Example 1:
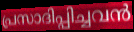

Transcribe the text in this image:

പ്രസാദിപ്പിച്ചവൻ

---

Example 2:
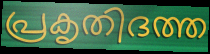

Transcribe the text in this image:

പ്രകൃതിദത്ത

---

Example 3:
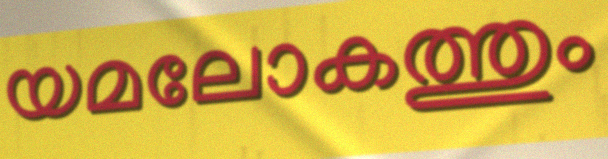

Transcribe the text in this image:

യമലോകത്തും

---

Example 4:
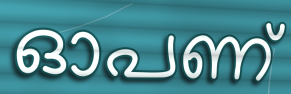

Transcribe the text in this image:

ഓപണ്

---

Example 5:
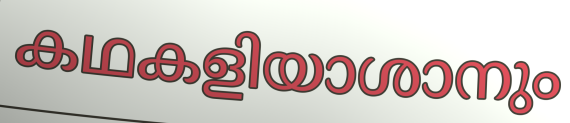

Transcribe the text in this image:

കഥകളിയാശാനും